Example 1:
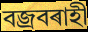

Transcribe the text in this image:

বজ্ৰবৰাহী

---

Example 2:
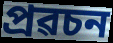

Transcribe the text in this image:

প্ৰৱচন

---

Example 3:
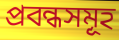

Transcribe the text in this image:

প্ৰবন্ধসমূহ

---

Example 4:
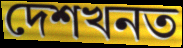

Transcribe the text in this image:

দেশখনত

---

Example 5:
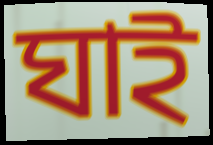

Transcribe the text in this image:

ঘাই